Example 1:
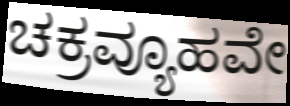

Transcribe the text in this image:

ಚಕ್ರವ್ಯೂಹವೇ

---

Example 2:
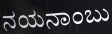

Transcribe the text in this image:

ನಯನಾಂಬು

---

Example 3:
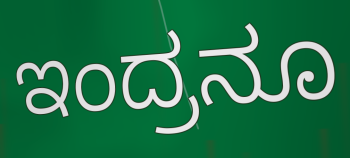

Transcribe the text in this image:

ಇಂದ್ರನೂ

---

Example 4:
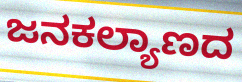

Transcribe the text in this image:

ಜನಕಲ್ಯಾಣದ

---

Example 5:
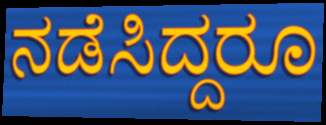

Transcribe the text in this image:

ನಡೆಸಿದ್ದರೂ